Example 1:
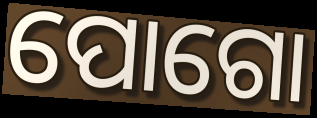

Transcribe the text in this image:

ପୋଗୋ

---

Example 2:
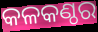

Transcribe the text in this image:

କଳକଣ୍ଠର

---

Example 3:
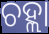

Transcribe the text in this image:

ଚହ୍ଲା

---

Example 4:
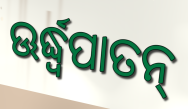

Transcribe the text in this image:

ଊର୍ଦ୍ଧ୍ବପାତନ୍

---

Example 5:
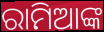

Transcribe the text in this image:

ରାମିଆଙ୍କ